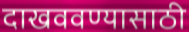
दाखववण्यासाठी